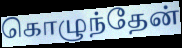
கொழுந்தேன்